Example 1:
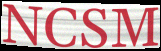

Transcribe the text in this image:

NCSM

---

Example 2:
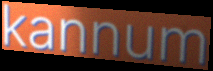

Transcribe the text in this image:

kannum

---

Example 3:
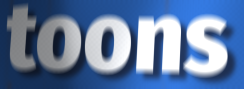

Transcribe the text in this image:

toons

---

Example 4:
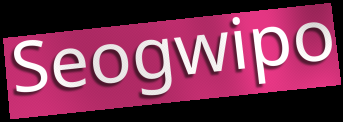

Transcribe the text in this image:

Seogwipo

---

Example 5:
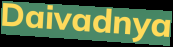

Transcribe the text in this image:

Daivadnya